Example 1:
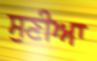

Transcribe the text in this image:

ਸੁਣੀਆ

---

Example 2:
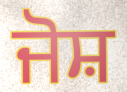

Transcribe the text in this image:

ਜੋਸ਼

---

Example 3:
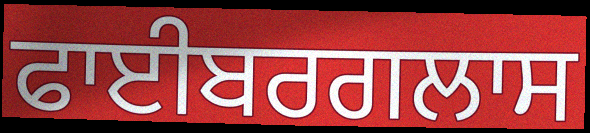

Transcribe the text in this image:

ਫਾਈਬਰਗਲਾਸ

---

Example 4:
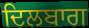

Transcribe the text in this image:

ਦਿਲਬਾਗ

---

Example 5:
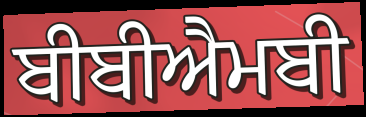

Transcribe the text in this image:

ਬੀਬੀਐਮਬੀ